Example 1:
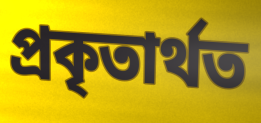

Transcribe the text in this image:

প্ৰকৃতাৰ্থত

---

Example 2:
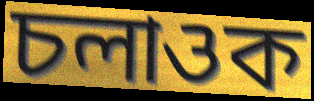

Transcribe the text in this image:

চলাওক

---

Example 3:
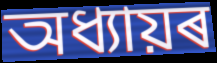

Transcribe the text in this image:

অধ্যায়ৰ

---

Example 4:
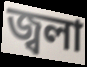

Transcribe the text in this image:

জ্বলা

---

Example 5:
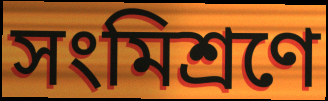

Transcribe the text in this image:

সংমিশ্ৰণে